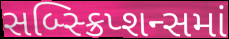
સબ્સ્ક્રિપ્શન્સમાં